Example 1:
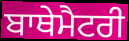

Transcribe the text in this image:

ਬਾਥੇਮੈਟਰੀ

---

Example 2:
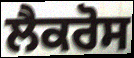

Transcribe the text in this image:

ਲੈਕਰੋਸ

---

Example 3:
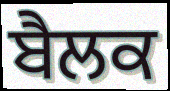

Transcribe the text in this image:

ਬੈਲਕ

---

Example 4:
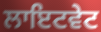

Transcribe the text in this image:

ਲਾਇਟਵੇਟ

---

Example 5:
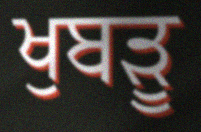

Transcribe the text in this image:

ਖੁਬੜੂ